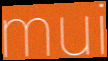
mui